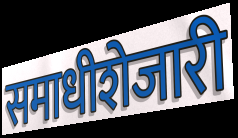
समाधीशेजारी